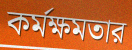
কর্মক্ষমতার